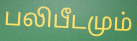
பலிபீடமும்